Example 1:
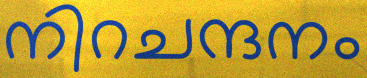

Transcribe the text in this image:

നിറചന്ദനം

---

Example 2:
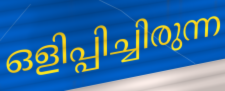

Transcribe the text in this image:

ഒളിപ്പിച്ചിരുന്ന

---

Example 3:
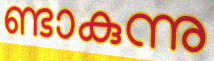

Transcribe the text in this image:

ണ്ടാകുന്നു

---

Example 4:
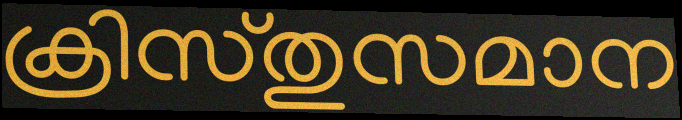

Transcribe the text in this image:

ക്രിസ്തുസമാന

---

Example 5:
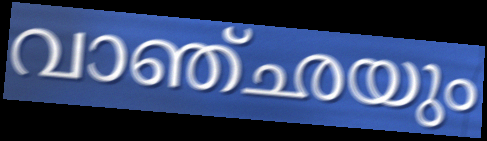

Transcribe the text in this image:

വാഞ്ഛയും